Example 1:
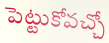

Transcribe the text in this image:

పెట్టుకోవచ్చో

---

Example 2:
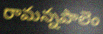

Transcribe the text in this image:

రామన్నపాలెం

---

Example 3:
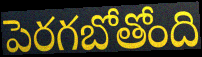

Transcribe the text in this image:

పెరగబోతోంది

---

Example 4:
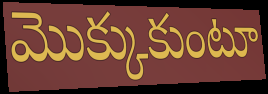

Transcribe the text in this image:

మొక్కుకుంటూ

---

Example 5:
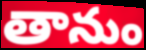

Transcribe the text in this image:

తానుం